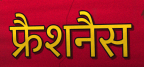
फ्रैशनैस